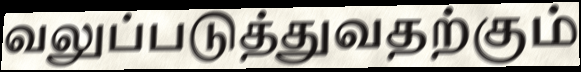
வலுப்படுத்துவதற்கும்